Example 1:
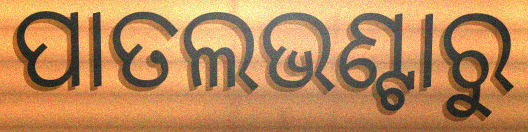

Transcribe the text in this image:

ପାତଲଭଣ୍ଟାରୁ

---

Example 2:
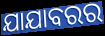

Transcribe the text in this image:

ଯାଯାବରର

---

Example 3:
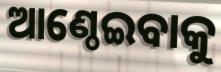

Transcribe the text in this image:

ଆଣ୍ଠେଇବାକୁ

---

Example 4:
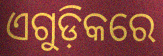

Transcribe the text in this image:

ଏଗୁଡ଼ିକରେ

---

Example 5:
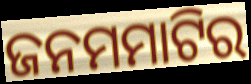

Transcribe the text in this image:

ଜନମମାଟିର